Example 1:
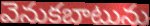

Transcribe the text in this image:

వెనుకబాటును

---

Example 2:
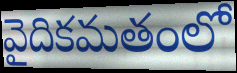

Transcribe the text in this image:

వైదికమతంలో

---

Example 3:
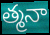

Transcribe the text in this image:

త్మనా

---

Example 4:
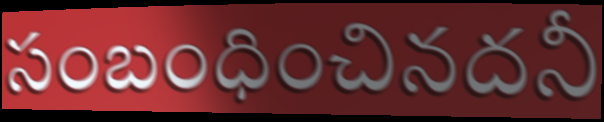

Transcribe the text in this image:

సంబంధించినదనీ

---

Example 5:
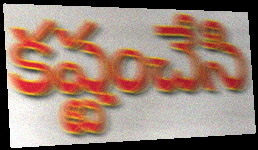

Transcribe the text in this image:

కష్టంచేసి